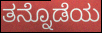
ತನ್ನೊಡೆಯ